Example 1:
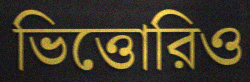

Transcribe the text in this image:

ভিত্তোরিও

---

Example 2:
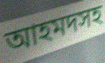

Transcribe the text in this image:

আহমদসহ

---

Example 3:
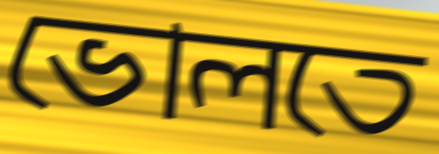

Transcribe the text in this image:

ভোলতে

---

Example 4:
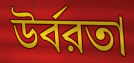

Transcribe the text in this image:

উর্বরতা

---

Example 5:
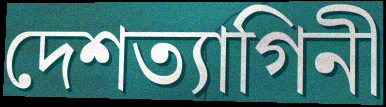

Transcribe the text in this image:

দেশত্যাগিনী